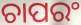
ଚାପରଂ